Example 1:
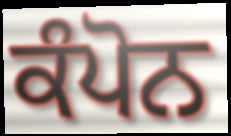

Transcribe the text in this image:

ਕੰਪੋਨ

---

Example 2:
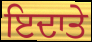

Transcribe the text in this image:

ਇਦਾਤੇ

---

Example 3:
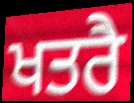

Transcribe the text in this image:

ਖਤਰੈ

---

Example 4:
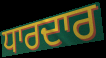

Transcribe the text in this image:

ਧਾਰਦਾਰ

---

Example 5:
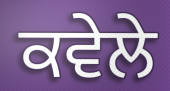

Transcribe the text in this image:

ਕਵੇਲੇ